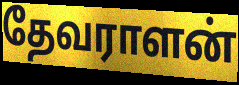
தேவராளன்